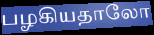
பழகியதாலோ